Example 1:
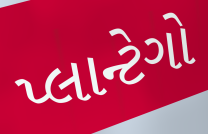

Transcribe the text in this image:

પ્લાન્ટેગો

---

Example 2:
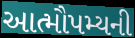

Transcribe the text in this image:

આત્મૌપમ્યની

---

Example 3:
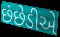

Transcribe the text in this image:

છંછેડીએ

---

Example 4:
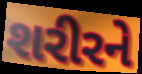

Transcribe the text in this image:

શરીરને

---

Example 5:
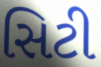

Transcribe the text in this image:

સિટી